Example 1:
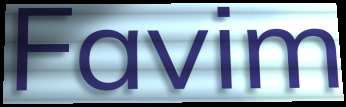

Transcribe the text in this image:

Favim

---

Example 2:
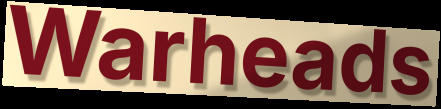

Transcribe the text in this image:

Warheads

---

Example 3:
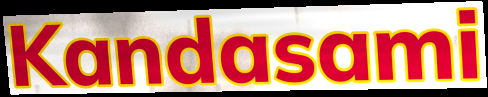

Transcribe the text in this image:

Kandasami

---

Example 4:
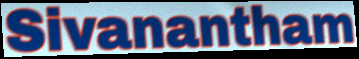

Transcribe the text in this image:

Sivanantham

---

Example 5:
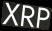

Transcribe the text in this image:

XRP